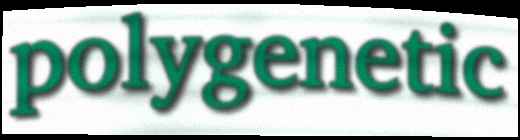
polygenetic